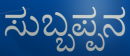
ಸುಬ್ಬಪ್ಪನ